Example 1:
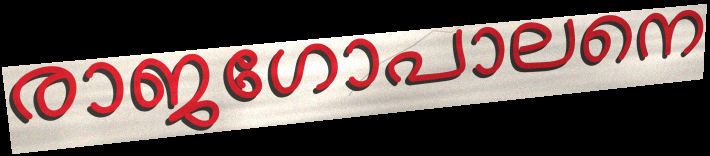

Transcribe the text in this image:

രാജഗോപാലനെ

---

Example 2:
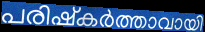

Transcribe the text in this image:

പരിഷ്കർത്താവായി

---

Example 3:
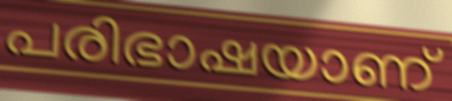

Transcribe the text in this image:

പരിഭാഷയാണ്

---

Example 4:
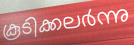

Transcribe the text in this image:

കൂടിക്കലർന്നു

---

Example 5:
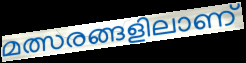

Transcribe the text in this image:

മത്സരങ്ങളിലാണ്